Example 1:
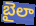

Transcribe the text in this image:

బైలా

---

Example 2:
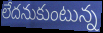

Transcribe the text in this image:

లేదనుకుంటున్న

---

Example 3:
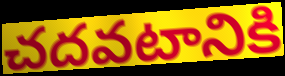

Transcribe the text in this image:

చదవటానికి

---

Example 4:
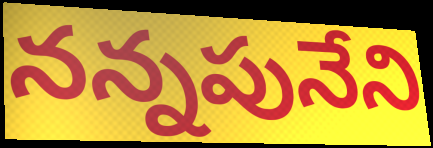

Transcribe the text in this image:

నన్నపునేని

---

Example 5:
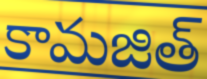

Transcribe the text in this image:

కామజిత్